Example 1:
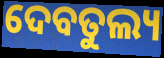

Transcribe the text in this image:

ଦେବତୁଲ୍ୟ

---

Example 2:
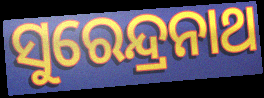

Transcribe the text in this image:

ସୁରେନ୍ଦ୍ରନାଥ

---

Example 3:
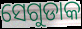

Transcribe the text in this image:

ସେଗୁଡାକ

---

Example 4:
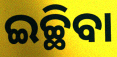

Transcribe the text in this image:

ଇଚ୍ଛିବା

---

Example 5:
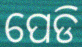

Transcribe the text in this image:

ପେଡି